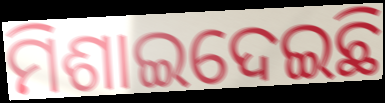
ମିଶାଇଦେଇଛି